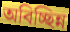
অবিচ্ছিন্ন